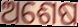
ଅଶେଷ